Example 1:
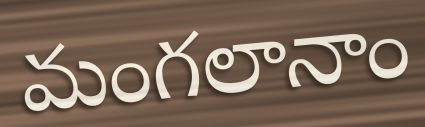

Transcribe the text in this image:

మంగలానాం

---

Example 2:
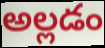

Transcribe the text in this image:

అల్లడం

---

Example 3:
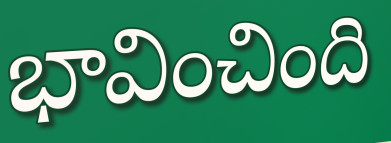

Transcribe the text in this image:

భావించింది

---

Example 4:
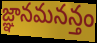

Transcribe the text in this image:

జ్ఞానమనన్తం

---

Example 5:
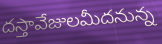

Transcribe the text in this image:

దస్తావేజులమీదనున్న